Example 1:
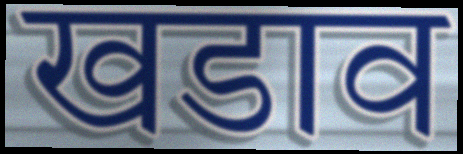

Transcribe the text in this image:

खडाव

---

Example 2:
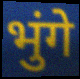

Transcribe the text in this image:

भुंगे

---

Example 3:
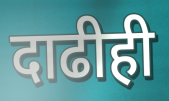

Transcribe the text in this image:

दाढीही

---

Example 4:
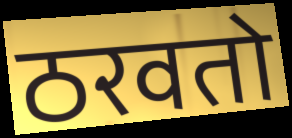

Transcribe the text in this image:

ठरवतो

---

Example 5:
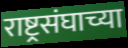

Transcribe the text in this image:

राष्ट्रसंघाच्या